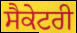
ਸੈਕੇਟਰੀ